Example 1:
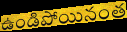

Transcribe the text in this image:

ఉండిపోయినంత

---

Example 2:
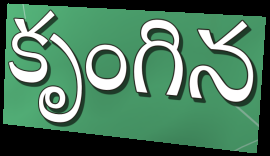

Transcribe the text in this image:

కృంగిన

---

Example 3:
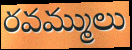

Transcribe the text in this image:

రవమ్ములు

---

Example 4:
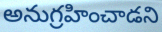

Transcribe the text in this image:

అనుగ్రహించాడని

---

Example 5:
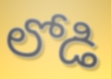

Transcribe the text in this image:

లోడి